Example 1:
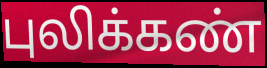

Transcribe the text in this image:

புலிக்கண்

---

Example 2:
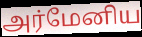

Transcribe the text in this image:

அர்மேனிய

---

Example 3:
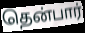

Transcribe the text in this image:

தென்பார்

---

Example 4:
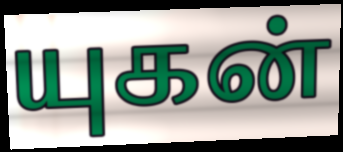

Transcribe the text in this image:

யுகன்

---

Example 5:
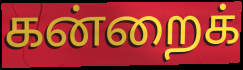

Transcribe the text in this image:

கன்றைக்